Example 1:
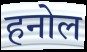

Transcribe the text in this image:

हनोल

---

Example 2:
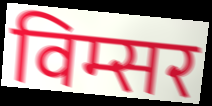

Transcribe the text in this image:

विम्सर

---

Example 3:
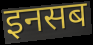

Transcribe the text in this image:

इनसब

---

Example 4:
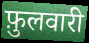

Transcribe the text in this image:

फ़ुलवारी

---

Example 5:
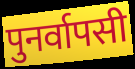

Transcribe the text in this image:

पुनर्वापसी